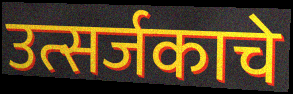
उत्सर्जकाचे